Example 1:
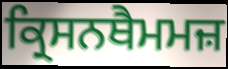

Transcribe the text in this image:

ਕ੍ਰਿਸਨਥੈਮਮਜ਼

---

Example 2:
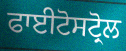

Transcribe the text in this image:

ਫਾਈਟੋਸਟ੍ਰੋਲ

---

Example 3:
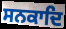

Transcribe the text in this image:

ਸਨਕਾਦਿ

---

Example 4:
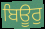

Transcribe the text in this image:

ਬਿਊਰੁ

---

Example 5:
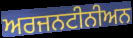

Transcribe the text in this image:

ਅਰਜਨਟੀਨੀਅਨ